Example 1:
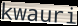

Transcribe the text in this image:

kwauri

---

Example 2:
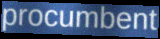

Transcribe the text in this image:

procumbent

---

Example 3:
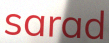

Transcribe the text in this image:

sarad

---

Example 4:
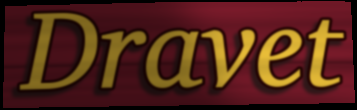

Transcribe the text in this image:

Dravet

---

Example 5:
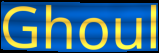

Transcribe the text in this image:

Ghoul